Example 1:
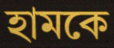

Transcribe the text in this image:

হামকে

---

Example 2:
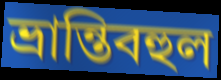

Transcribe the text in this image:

ভ্রান্তিবহুল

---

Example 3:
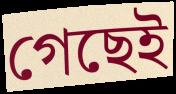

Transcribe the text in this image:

গেছেই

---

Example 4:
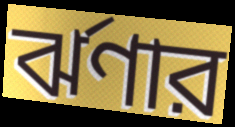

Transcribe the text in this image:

র্ঝণার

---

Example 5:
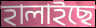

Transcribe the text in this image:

হালাইছে